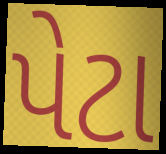
પેટા